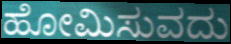
ಹೋಮಿಸುವದು